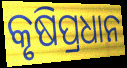
କୃଷିପ୍ରଧାନ